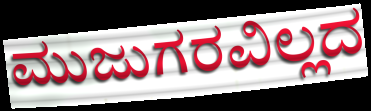
ಮುಜುಗರವಿಲ್ಲದ